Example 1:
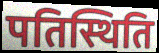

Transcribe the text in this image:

पतिस्थिति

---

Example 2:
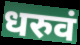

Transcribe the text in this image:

धरुवं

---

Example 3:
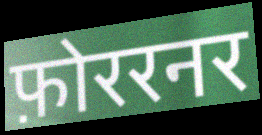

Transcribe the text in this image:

फ़ोररनर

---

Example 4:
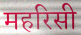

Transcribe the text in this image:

महरिसी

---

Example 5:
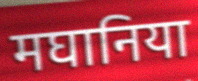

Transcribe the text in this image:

मघानिया